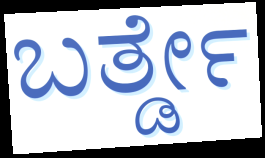
ಬರ್ತ್ಡೇ